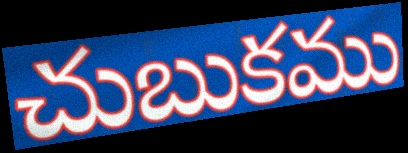
చుబుకము